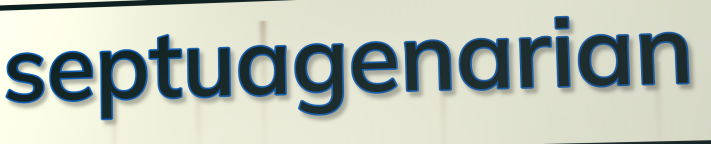
septuagenarian